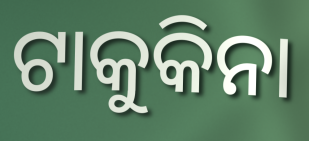
ଟାକୁକିନା